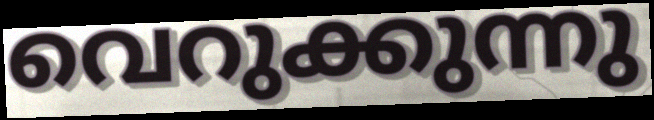
വെറുക്കുന്നു